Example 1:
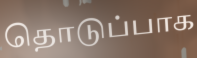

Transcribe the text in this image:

தொடுப்பாக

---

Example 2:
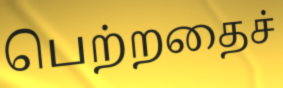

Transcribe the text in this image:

பெற்றதைச்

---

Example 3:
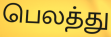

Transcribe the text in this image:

பெலத்து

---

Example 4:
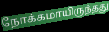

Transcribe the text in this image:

நோக்கமாயிருந்தது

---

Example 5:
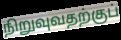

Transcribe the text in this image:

நிறுவுவதற்குப்